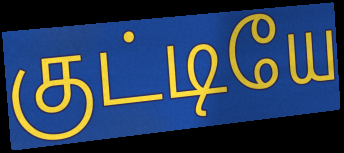
குட்டியே